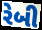
રેબી